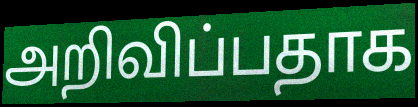
அறிவிப்பதாக